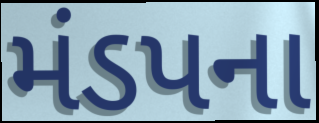
મંડપના